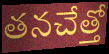
తనచేత్తో